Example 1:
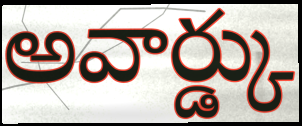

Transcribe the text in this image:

అవార్డ్కు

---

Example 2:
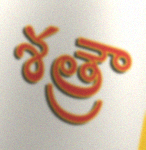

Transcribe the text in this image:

శత్రౌ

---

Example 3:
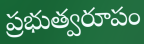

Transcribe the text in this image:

ప్రభుత్వరూపం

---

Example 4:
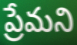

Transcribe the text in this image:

ప్రేమని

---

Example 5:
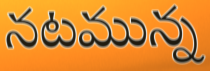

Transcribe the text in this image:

నటమున్న